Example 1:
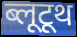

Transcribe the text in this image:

ब्‍लूटूथ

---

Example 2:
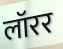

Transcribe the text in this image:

लॉरर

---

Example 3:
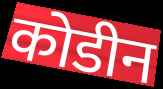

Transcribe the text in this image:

कोडीन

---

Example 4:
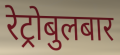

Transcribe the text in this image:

रेट्रोबुलबार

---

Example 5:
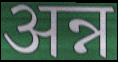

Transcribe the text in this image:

अन्न